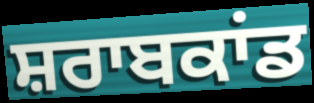
ਸ਼ਰਾਬਕਾਂਡ